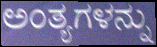
ಅಂತ್ಯಗಳನ್ನು